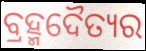
ବ୍ରହ୍ମଦୈତ୍ୟର